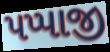
પપ્પાજી